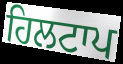
ਹਿਲਟਾਪ